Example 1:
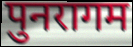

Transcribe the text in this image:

पुनरागम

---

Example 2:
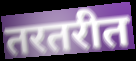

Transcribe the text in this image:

तरतरीत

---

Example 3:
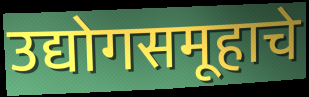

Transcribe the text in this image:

उद्योगसमूहाचे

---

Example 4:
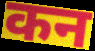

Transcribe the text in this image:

कन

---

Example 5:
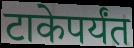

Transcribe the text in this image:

टाकेपर्यंत